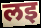
लइ